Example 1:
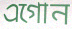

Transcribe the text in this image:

এগোন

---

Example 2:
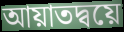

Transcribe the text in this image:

আয়াতদ্বয়ে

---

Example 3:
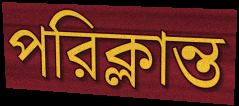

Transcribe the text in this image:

পরিক্লান্ত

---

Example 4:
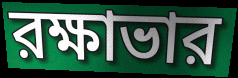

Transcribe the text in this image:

রক্ষাভার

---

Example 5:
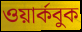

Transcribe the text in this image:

ওয়ার্কবুক